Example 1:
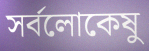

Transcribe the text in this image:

সর্বলোকেষু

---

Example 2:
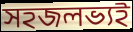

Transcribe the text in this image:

সহজলভ্যই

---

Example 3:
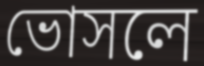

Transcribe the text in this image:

ভোসলে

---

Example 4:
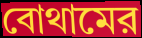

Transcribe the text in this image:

বোথামের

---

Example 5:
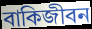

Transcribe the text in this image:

বাকিজীবন